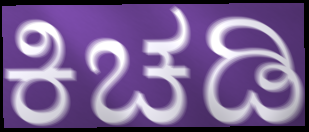
ಕಿಚಡಿ